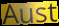
Aust